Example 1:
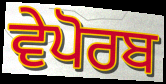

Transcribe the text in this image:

ਵੇਪੋਰਬ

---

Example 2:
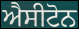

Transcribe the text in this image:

ਐਸੀਟੋਨ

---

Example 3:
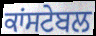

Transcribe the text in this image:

ਕਾਂਸਟੇਬਲ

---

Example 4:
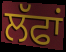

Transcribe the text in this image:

ਲੱਫਾਂ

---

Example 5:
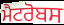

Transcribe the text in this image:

ਮੈਟਰੋਬਸ